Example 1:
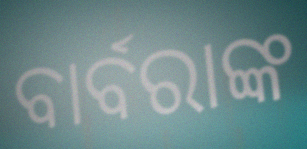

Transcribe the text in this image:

ବାର୍ବରାଙ୍କ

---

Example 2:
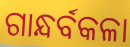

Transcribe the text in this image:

ଗାନ୍ଧର୍ବକଳା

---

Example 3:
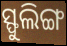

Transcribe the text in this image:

ସ୍ଫୁଲିଙ୍ଗ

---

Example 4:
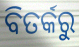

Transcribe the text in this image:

ବିତର୍କରୁ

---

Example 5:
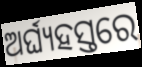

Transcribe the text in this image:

ଅର୍ଘ୍ୟହସ୍ତରେ